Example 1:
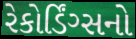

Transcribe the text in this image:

રેકોર્ડિંગ્સનો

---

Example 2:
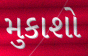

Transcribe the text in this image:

મુકાશો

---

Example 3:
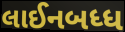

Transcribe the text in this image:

લાઈનબધ્ધ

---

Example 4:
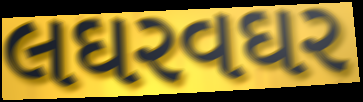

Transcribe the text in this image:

લઘરવઘર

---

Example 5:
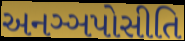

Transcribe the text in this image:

અનઞ્ઞપોસીતિ